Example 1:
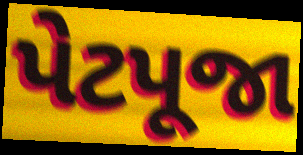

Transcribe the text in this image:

પેટપૂજા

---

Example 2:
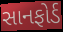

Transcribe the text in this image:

સાનફોર્ડ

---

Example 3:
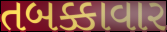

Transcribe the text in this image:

તબક્કાવાર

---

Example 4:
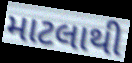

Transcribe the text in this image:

માટલાથી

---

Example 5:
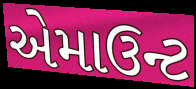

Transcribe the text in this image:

એમાઉન્ટ